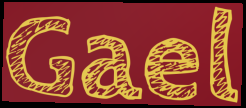
Gael